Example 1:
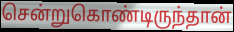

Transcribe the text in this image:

சென்றுகொண்டிருந்தான்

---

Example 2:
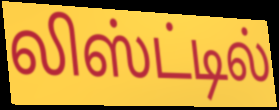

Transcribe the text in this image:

லிஸ்ட்டில்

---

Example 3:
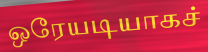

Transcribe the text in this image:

ஒரேயடியாகச்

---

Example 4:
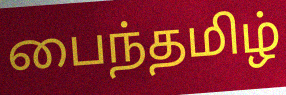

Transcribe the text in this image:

பைந்தமிழ்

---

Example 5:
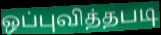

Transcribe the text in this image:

ஒப்புவித்தபடி